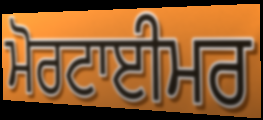
ਮੋਰਟਾਈਮਰ